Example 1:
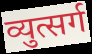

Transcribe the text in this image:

व्युत्सर्ग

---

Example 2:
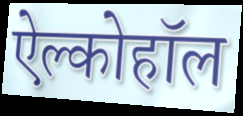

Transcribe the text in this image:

ऐल्कोहॉल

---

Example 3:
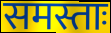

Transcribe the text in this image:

समस्ताः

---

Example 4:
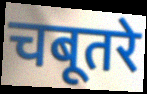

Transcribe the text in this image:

चबूतरे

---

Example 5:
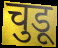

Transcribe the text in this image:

चुडू